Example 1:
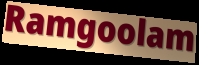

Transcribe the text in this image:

Ramgoolam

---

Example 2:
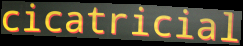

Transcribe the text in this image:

cicatricial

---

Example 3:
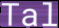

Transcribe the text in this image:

Tal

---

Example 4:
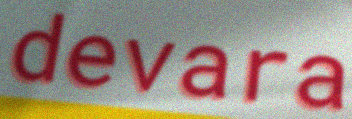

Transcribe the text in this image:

devara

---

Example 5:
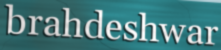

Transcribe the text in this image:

brahdeshwar